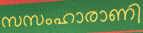
സസംഹാരാണി